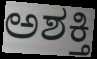
ಅಶಕ್ತಿ